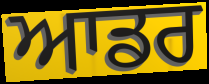
ਆਡਰ